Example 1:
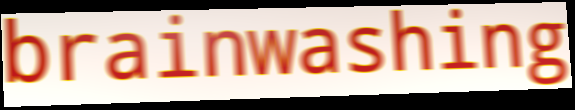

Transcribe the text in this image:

brainwashing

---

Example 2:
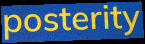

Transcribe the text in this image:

posterity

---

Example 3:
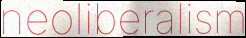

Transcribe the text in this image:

neoliberalism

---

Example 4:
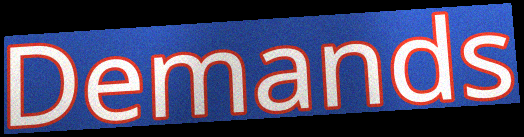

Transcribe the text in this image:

Demands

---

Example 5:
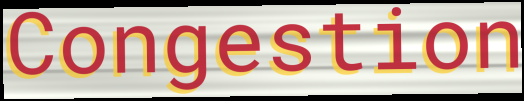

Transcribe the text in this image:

Congestion